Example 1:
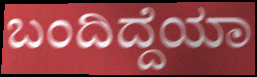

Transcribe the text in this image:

ಬಂದಿದ್ದೆಯಾ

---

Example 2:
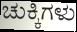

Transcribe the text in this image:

ಚುಕ್ಕಿಗಳು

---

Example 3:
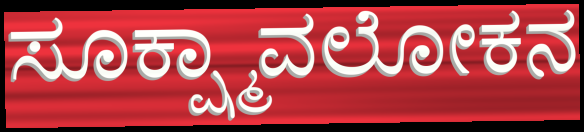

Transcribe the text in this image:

ಸೂಕ್ಷ್ಮಾವಲೋಕನ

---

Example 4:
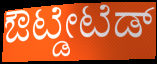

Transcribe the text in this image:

ಔಟ್ಡೇಟೆಡ್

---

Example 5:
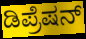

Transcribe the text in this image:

ಡಿಪ್ರೆಷನ್